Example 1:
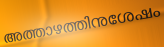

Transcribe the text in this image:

അത്താഴത്തിനുശേഷം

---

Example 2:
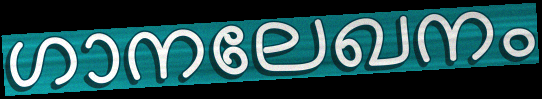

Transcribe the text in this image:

ഗാനലേഖനം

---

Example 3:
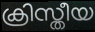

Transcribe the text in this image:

ക്രിസ്തീയ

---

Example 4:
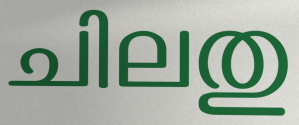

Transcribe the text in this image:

ചിലതു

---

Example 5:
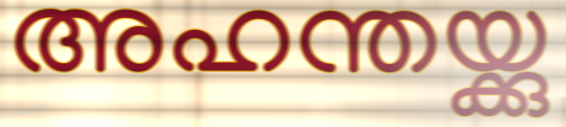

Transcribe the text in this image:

അഹന്തയ്ക്കു